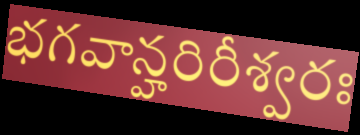
భగవాన్హరిరీశ్వరః